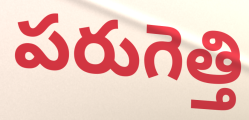
పరుగెత్తి